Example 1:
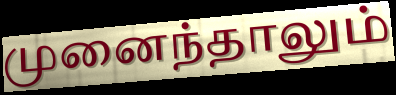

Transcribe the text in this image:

முனைந்தாலும்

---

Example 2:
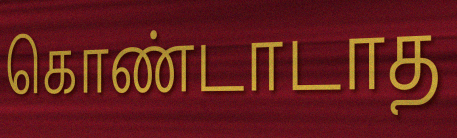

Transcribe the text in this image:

கொண்டாடாத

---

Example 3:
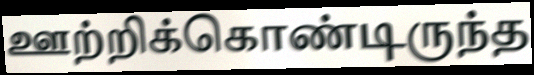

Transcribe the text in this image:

ஊற்றிக்கொண்டிருந்த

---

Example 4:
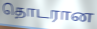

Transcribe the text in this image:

தொடரான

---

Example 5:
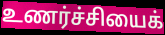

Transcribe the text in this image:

உணர்ச்சியைக்